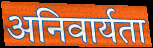
अनिवार्यता